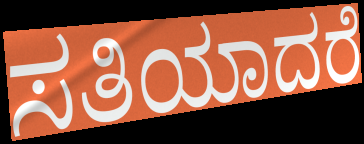
ಸತಿಯಾದರೆ